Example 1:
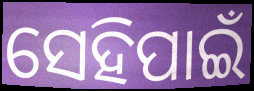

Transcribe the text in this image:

ସେହିପାଇଁ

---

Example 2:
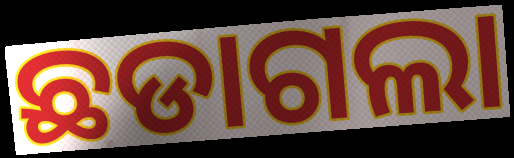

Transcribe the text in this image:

ଛଡାଗଲା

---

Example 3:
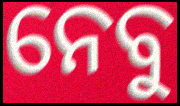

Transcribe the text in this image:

ନେବୁ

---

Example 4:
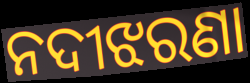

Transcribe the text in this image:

ନଦୀଝରଣା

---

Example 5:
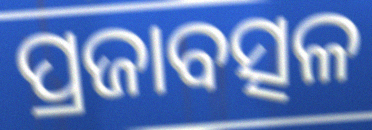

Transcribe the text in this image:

ପ୍ରଜାବତ୍ସଳ